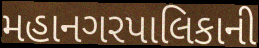
મહાનગરપાલિકાની